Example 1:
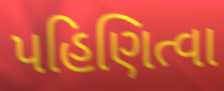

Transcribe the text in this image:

પહિણિત્વા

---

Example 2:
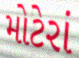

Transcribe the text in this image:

મોટેરાં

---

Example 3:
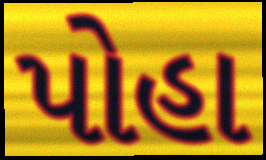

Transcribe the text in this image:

પોહા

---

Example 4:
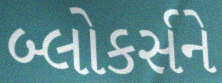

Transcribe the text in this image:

બ્લોકર્સને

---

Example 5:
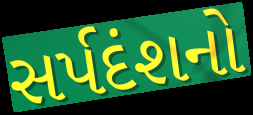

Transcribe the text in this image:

સર્પદંશનો